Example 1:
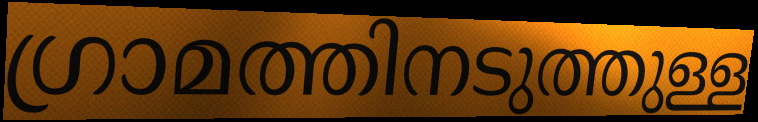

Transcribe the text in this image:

ഗ്രാമത്തിനടുത്തുള്ള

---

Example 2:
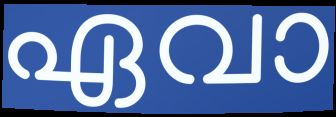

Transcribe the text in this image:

ഏവാ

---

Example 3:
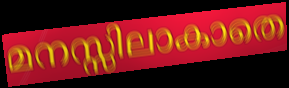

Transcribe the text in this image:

മനസ്സിലാകാതെ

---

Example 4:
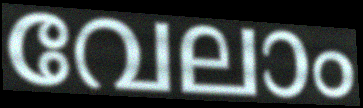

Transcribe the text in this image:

വേലാം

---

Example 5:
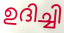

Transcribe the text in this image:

ഉദിച്ചി